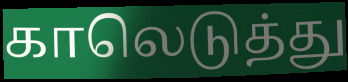
காலெடுத்து